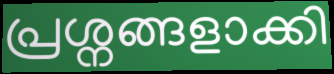
പ്രശ്നങ്ങളാക്കി